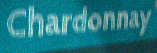
Chardonnay